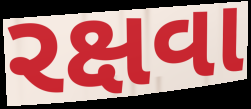
રક્ષવા